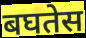
बघतेस